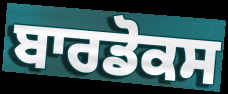
ਬਾਰਡੋਕਸ